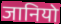
जानियो